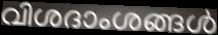
വിശദാംശങ്ങൾ